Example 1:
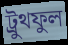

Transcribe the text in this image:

ট্রুথফুল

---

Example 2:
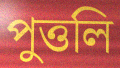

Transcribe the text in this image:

পুত্তলি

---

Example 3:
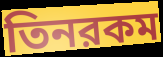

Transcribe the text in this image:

তিনরকম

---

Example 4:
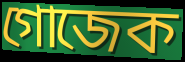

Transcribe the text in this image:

গোজেক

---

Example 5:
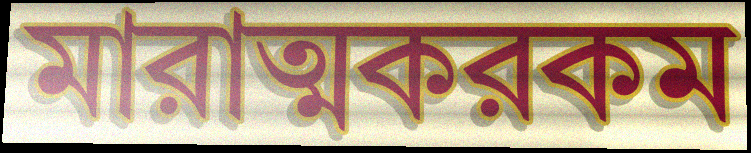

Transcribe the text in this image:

মারাত্মকরকম